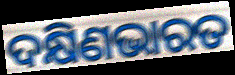
ଦକ୍ଷିଣଭାରତ